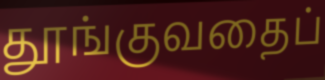
தூங்குவதைப்